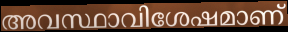
അവസ്ഥാവിശേഷമാണ്